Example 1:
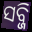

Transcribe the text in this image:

ସବ୍ଜି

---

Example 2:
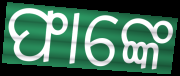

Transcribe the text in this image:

ଫାଙ୍କେ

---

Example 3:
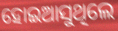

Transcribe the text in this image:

ହୋଇଆସୁଥିଲେ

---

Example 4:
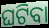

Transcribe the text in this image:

ଘଟିବା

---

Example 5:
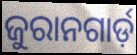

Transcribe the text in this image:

ଜୁରାନଗାର୍ଡ଼